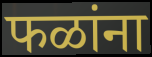
फळांना